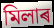
মিলাৰ